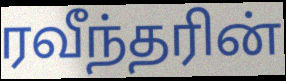
ரவீந்தரின்